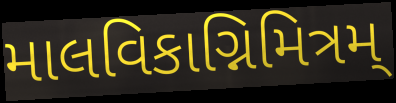
માલવિકાગ્નિમિત્રમ્